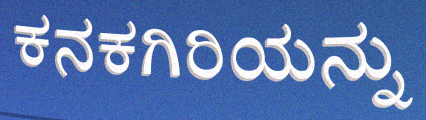
ಕನಕಗಿರಿಯನ್ನು